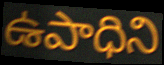
ఉపాధిని